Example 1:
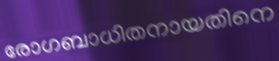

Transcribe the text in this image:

രോഗബാധിതനായതിനെ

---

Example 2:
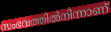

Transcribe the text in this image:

സംഭവത്തിൽനിന്നാണ്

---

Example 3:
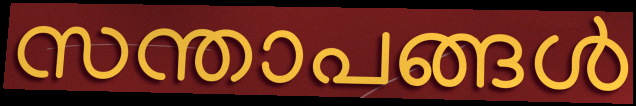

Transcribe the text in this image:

സന്താപങ്ങൾ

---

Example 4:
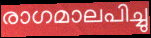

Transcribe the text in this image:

രാഗമാലപിച്ചു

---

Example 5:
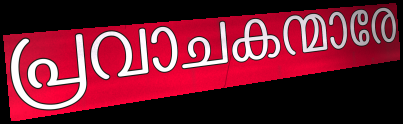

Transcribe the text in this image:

പ്രവാചകന്മാരേ